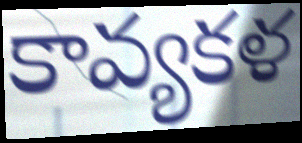
కావ్యకళ